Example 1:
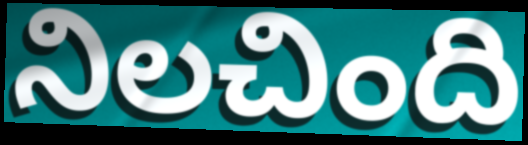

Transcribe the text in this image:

నిలచింది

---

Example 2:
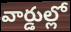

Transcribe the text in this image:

వార్డుల్లో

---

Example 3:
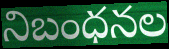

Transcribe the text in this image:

నిబంధనల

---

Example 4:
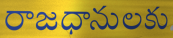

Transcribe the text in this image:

రాజధానులకు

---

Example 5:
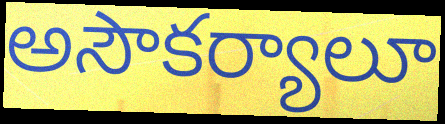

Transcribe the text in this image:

అసౌకర్యాలూ